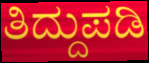
ತಿದ್ದುಪಡಿ